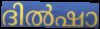
ദിൽഷാ